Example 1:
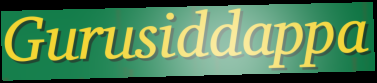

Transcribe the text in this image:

Gurusiddappa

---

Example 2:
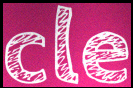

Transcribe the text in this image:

cle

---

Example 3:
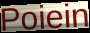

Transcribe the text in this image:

Poiein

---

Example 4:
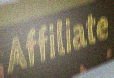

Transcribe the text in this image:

Affiliate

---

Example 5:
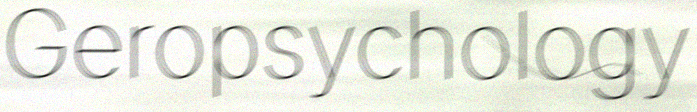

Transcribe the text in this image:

Geropsychology